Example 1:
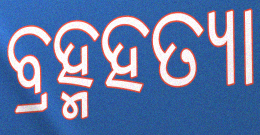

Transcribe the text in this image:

ବ୍ରହ୍ମହତ୍ୟା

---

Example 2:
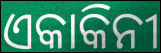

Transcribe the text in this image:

ଏକାକିନୀ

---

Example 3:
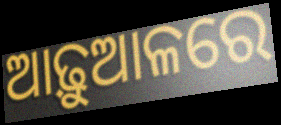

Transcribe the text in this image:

ଆଢ଼ୁଆଳରେ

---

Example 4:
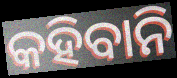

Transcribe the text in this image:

କହିବାନି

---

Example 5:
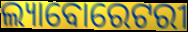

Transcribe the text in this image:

ଲ୍ୟାବୋରେଟରୀ